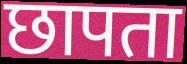
छापता